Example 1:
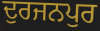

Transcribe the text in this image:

ਦੁਰਜਨਪੁਰ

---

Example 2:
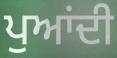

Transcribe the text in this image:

ਪੁਆਂਦੀ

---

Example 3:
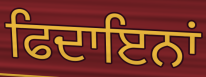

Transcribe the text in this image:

ਫਿਦਾਇਨਾਂ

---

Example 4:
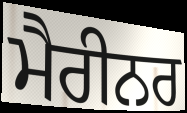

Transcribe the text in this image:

ਮੈਰੀਨਰ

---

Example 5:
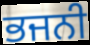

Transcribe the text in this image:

ਭਜਨੀ